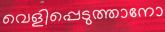
വെളിപ്പെടുത്താനോ